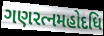
ગણરત્નમહોદધિ